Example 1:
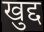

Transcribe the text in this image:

खुद्द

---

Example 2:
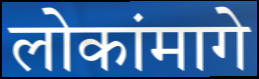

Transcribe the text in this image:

लोकांमागे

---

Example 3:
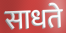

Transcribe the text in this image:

साधते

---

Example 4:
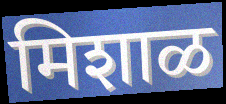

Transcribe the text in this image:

मिशाळ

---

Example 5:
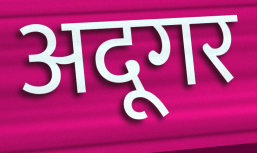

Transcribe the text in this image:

अदूगर